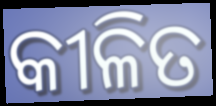
କୀଳିତ